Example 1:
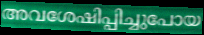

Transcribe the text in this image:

അവശേഷിപ്പിച്ചുപോയ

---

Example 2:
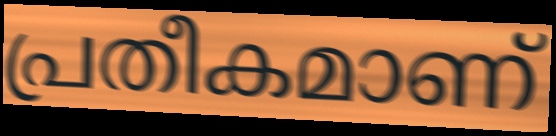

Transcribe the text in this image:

പ്രതീകമാണ്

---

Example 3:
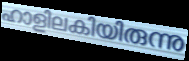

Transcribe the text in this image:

ഹാളിലകിയിരുന്നു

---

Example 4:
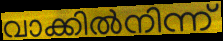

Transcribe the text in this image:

വാക്കിൽനിന്ന്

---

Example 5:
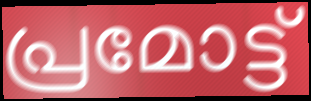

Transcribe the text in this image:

പ്രമോട്ട്